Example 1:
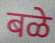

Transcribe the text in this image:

बळे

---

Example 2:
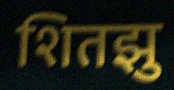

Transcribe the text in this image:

शितझु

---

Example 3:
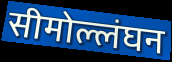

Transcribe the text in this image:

सीमोल्लंघन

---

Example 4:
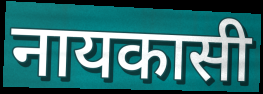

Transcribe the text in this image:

नायकासी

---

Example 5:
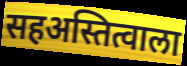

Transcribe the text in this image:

सहअस्तित्वाला